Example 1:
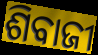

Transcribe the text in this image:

ଶିବାଜୀ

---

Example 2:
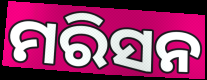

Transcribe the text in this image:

ମରିସନ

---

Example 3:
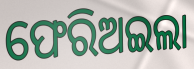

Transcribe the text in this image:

ଫେରିଅଇଲା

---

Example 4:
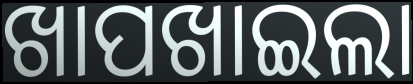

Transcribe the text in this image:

ଖାପଖାଇଲା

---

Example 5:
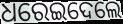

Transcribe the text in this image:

ଧରେଇଦେଲେ